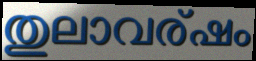
തുലാവര്ഷം